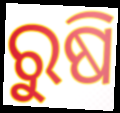
ରୁଷି